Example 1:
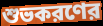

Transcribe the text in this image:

শুভকরণের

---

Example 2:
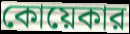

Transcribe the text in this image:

কোয়েকার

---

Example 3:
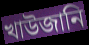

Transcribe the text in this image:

খাউজানি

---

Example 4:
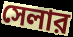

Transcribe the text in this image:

সেলার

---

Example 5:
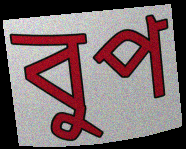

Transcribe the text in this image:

বুপ